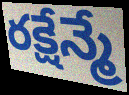
రక్షేన్మే